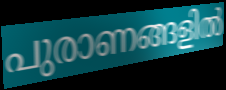
പുരാണങ്ങളിൽ